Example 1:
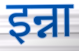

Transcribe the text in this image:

इन्ना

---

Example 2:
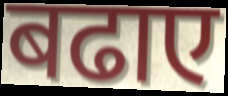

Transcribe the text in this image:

बढाए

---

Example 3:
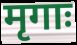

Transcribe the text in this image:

मृगाः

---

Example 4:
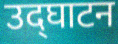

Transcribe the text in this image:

उद्घाटन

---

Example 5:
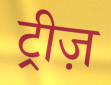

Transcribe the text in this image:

ट्रीज़